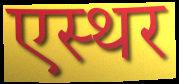
एस्थर